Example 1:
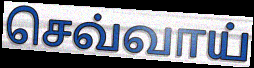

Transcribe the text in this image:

செவ்வாய்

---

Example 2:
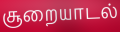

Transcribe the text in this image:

சூறையாடல்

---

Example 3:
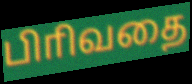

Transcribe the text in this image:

பிரிவதை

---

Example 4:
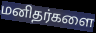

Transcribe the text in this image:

மனிதர்களை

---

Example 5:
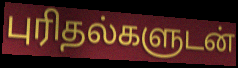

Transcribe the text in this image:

புரிதல்களுடன்